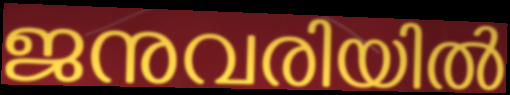
ജനുവരിയിൽ